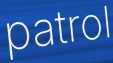
patrol